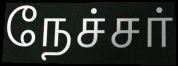
நேச்சர்